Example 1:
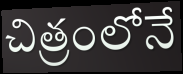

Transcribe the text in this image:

చిత్రంలోనే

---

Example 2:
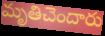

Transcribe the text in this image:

మృతిచెందారు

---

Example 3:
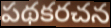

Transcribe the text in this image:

పథకరచన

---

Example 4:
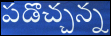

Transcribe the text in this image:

పడొచ్చన్న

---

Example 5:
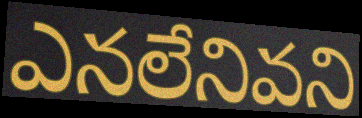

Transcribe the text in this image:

ఎనలేనివని